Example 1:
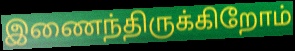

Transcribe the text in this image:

இணைந்திருக்கிறோம்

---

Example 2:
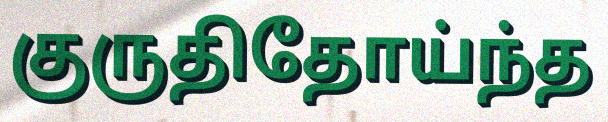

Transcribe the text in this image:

குருதிதோய்ந்த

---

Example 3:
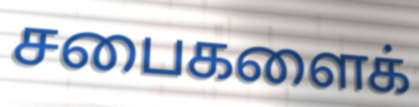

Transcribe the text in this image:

சபைகளைக்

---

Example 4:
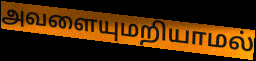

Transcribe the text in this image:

அவளையுமறியாமல்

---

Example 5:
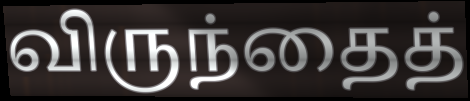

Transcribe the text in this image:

விருந்தைத்